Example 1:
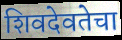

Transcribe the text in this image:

शिवदेवतेचा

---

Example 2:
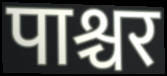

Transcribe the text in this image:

पाश्चर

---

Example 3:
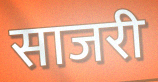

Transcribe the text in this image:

साजरी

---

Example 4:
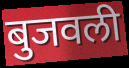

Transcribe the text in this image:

बुजवली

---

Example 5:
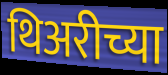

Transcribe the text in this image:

थिअरीच्या